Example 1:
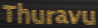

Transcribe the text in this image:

Thuravu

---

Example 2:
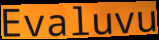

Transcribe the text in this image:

Evaluvu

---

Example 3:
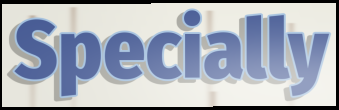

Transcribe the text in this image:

Specially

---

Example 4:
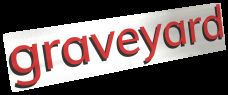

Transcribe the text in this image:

graveyard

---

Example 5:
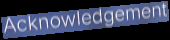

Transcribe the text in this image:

Acknowledgement